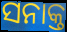
ସନାକ୍ତ